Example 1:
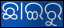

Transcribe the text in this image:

ଛାଇରୁ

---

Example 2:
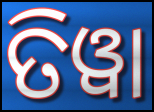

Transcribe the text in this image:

ତିୱା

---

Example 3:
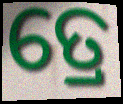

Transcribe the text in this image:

ତ୍ରେ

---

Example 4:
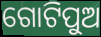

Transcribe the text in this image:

ଗୋଟିପୁଅ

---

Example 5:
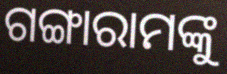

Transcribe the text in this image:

ଗଙ୍ଗାରାମଙ୍କୁ